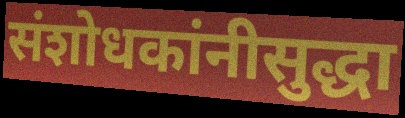
संशोधकांनीसुद्धा